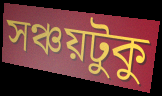
সঞ্চয়টুকু